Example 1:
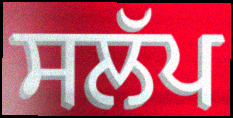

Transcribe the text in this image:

ਸਲੱਪ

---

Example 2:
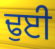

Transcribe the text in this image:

ਢੁਈ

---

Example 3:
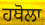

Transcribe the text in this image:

ਹਥੋਲਾ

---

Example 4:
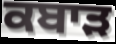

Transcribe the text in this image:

ਕਬਾੜ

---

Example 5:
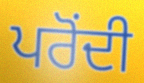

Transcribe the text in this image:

ਪਰੋਂਦੀ